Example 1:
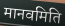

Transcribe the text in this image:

मानवमिति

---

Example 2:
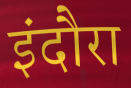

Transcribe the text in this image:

इंदौरा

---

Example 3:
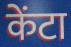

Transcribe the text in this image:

केंटा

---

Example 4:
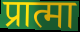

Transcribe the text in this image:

प्रात्मा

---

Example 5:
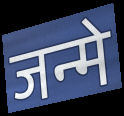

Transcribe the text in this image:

जन्मे